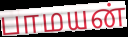
பாமயன்